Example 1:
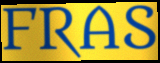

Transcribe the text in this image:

FRAS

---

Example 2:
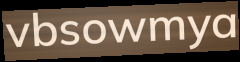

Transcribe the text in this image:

vbsowmya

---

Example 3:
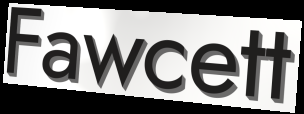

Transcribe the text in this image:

Fawcett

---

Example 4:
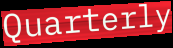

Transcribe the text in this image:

Quarterly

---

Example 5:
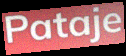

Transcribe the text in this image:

Pataje